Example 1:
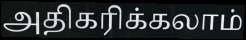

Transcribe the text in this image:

அதிகரிக்கலாம்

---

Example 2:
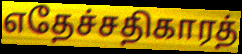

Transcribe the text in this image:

எதேச்சதிகாரத்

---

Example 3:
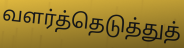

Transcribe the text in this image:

வளர்த்தெடுத்துத்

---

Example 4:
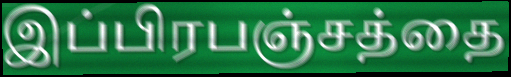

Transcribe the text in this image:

இப்பிரபஞ்சத்தை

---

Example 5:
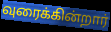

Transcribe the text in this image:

வுரைக்கின்றார்